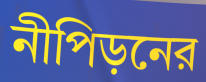
নীপিড়নের